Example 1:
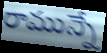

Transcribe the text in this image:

రామున్నే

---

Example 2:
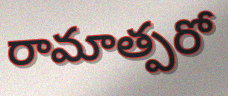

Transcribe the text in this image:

రామాత్పరో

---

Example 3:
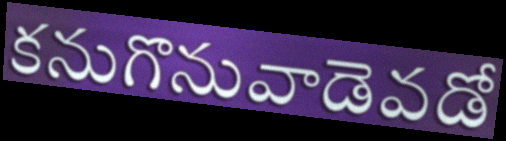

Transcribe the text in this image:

కనుగొనువాడెవడో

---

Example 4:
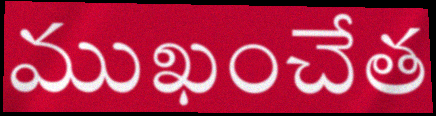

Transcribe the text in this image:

ముఖంచేత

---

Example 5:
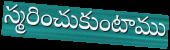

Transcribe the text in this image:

స్మరించుకుంటాము